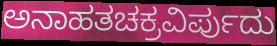
ಅನಾಹತಚಕ್ರವಿರ್ಪುದು